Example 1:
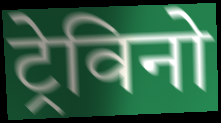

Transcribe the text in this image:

ट्रेविनो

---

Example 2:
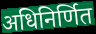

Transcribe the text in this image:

अधिनिर्णित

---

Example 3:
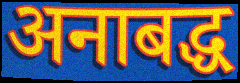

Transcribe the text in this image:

अनाबद्ध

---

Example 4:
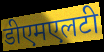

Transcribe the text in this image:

डीएमएलटी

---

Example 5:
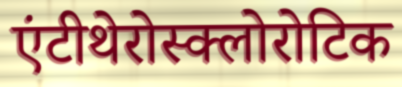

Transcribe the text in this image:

एंटीथेरोस्क्लोरोटिक